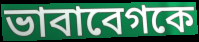
ভাবাবেগকে